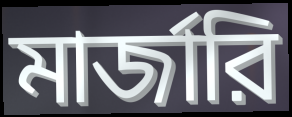
মার্জারি